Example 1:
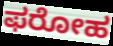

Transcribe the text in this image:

ಫರೋಹ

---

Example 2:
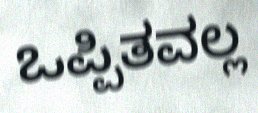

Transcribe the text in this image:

ಒಪ್ಪಿತವಲ್ಲ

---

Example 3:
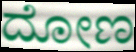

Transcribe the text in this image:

ದೋಣ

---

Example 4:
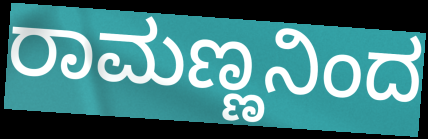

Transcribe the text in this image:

ರಾಮಣ್ಣನಿಂದ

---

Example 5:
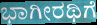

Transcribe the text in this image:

ಭಾಗೀರಥಿಗೆ